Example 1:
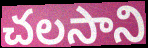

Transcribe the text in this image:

చలసాని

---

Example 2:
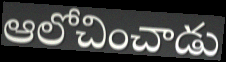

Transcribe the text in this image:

ఆలోచించాడు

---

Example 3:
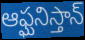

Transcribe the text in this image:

ఆఫ్ఘనిస్తాన్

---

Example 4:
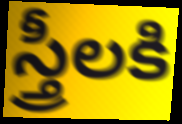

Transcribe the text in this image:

స్త్రీలకి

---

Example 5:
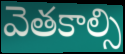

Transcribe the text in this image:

వెతకాల్సి